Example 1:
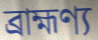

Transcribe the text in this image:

ব্ৰাহ্মণ্য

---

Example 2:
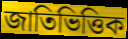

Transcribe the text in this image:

জাতিভিত্তিক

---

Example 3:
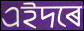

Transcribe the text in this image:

এইদৰে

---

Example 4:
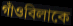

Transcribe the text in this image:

গাঁওবিলাকে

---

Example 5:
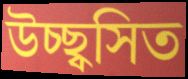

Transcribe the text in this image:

উচ্ছ্বসিত